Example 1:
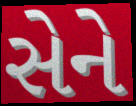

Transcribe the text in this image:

સેને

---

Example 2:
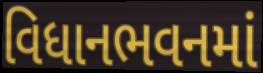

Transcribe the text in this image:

વિધાનભવનમાં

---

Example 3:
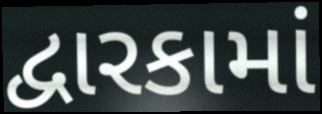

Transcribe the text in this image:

દ્વારકામાં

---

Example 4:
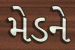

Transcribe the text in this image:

મેડને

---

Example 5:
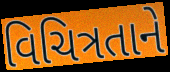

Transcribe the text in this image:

વિચિત્રતાને